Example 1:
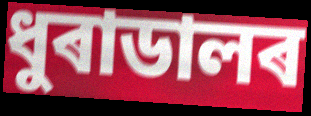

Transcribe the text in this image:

ধুৰাডালৰ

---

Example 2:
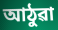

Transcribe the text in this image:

আঠুৱা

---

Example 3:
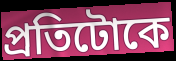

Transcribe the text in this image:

প্ৰতিটোকে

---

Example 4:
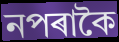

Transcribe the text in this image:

নপৰাকৈ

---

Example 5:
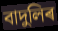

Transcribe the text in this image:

বাদুলিৰ